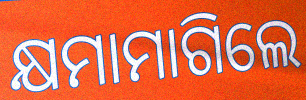
କ୍ଷମାମାଗିଲେ